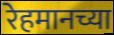
रेहमानच्या